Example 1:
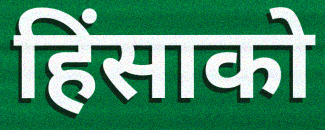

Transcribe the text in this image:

हिंसाको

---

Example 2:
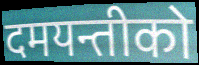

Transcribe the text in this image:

दमयन्तीको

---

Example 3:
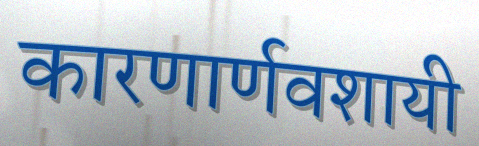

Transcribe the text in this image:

कारणार्णवशायी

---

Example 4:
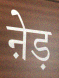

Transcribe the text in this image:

ऩेड़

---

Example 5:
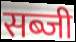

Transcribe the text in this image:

सब्जी